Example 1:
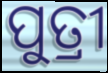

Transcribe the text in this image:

ପୁତ୍ରୀ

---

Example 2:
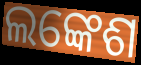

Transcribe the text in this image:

ଲଙ୍କେଶ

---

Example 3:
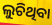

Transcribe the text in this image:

ଲୁଚିଥିବା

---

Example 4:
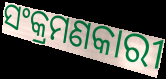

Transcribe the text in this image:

ସଂକ୍ରମଣକାରୀ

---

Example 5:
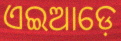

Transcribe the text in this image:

ଏଇଆଡ଼େ